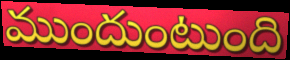
ముందుంటుంది